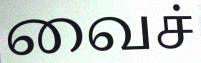
வைச்